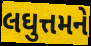
લઘુત્તમને